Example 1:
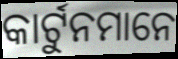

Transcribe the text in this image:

କାର୍ଟୁନମାନେ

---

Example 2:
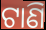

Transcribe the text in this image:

ଟାଣି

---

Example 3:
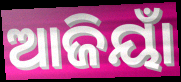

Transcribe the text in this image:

ଆଜିୟାଁ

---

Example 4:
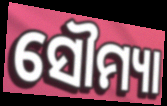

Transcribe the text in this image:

ସୌମ୍ୟା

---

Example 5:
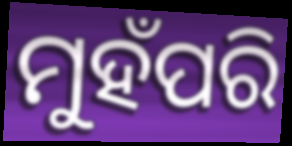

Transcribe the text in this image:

ମୁହଁପରି